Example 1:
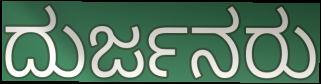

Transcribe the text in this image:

ದುರ್ಜನರು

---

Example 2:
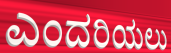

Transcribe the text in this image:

ಎಂದರಿಯಲು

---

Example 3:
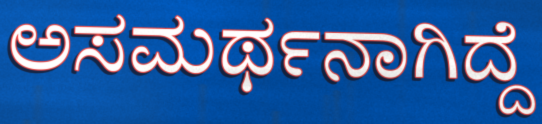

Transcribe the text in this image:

ಅಸಮರ್ಥನಾಗಿದ್ದೆ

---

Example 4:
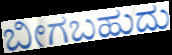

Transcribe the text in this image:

ಬೀಗಬಹುದು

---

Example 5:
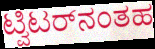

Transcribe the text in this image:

ಟ್ವಿಟರ್‌ನಂತಹ